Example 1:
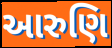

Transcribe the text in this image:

આરુણિ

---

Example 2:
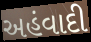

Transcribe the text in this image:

અહંવાદી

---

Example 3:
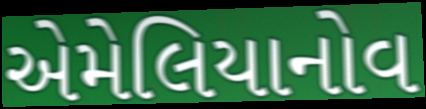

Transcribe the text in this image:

એમેલિયાનોવ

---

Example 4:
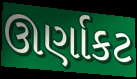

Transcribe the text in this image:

ઊર્ણાકટ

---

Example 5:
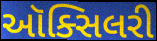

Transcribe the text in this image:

ઑક્સિલરી